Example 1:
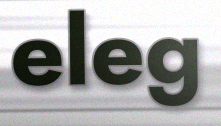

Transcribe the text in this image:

eleg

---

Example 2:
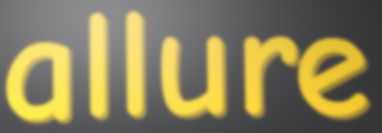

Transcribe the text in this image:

allure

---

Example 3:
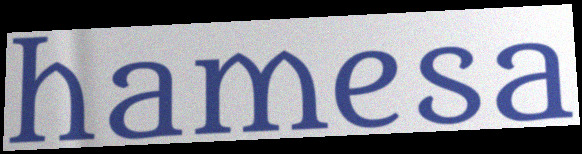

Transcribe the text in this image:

hamesa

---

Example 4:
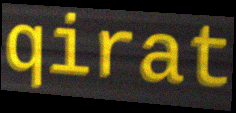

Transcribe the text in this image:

qirat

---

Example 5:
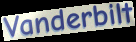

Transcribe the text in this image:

Vanderbilt